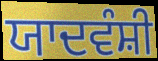
ਯਾਦਵੰਸ਼ੀ